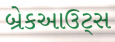
બ્રેકઆઉટ્સ